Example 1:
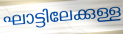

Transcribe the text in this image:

ഘാട്ടിലേക്കുള്ള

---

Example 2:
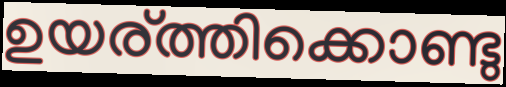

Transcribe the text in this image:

ഉയര്ത്തിക്കൊണ്ടു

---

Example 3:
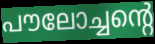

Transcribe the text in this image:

പൗലോച്ചന്റെ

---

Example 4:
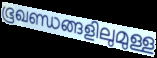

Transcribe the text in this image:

ഭൂഖണ്ഡങ്ങളിലുമുള്ള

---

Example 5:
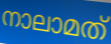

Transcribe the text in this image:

നാലാമത്